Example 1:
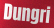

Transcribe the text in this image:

Dungri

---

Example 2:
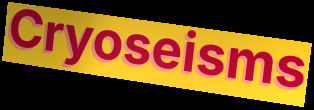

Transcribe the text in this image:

Cryoseisms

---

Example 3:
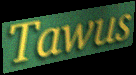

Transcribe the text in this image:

Tawus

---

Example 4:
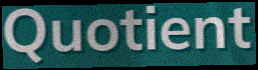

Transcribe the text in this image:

Quotient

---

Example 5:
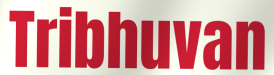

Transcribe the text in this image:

Tribhuvan